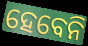
ହେବେନି